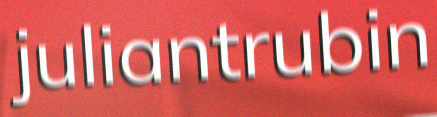
juliantrubin